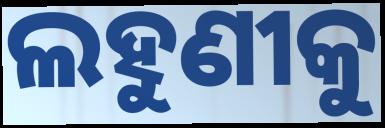
ଲହୁଣୀକୁ